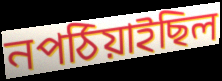
নপঠিয়াইছিল